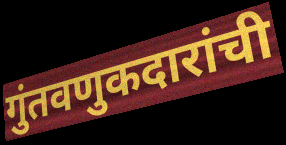
गुंतवणुकदारांची